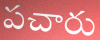
పచారు